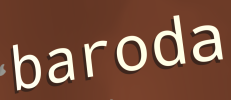
baroda